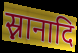
स्नानादि